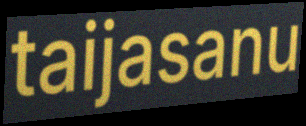
taijasanu